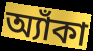
অ্যাঁকা